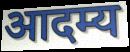
आदम्य